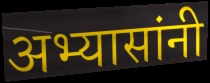
अभ्यासांनी